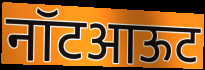
नॉटआऊट